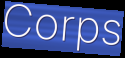
Corps